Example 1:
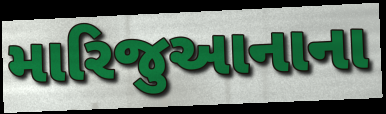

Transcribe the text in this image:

મારિજુઆનાના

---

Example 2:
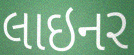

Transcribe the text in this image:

લાઇનર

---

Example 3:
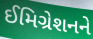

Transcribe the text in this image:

ઈમિગ્રેશનને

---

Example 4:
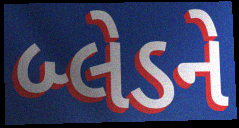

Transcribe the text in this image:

બ્લેડને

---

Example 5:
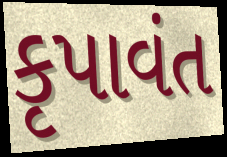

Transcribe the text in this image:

કૃપાવંત